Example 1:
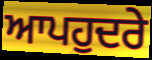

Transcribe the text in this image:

ਆਪਹੁਦਰੇ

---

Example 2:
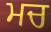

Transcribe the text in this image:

ਮਚ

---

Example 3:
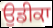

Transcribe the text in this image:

ਉਡੀਕਾ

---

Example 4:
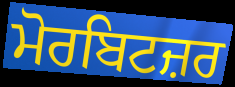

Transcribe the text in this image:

ਮੋਰਬਿਟਜ਼ਰ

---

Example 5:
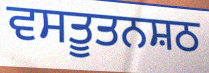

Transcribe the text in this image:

ਵਸਤੂਤਨਸ਼ਠ